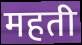
महती